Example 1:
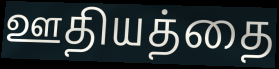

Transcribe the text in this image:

ஊதியத்தை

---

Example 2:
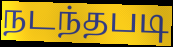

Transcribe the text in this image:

நடந்தபடி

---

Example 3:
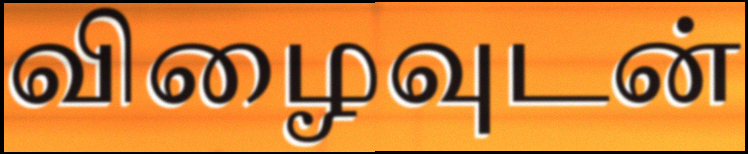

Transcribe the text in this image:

விழைவுடன்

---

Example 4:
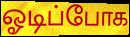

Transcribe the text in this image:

ஓடிப்போக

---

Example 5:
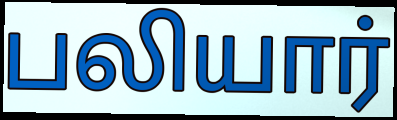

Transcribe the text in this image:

பலியார்